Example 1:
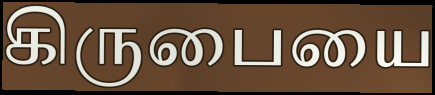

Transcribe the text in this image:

கிருபையை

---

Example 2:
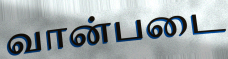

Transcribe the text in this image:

வான்படை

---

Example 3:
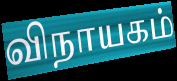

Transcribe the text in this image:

விநாயகம்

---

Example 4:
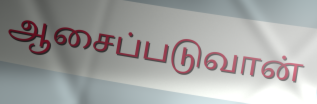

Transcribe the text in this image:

ஆசைப்படுவான்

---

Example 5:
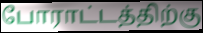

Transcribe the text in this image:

போராட்டத்திற்கு